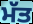
ਮੱਤ